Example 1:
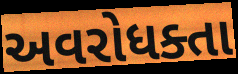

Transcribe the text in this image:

અવરોધક્તા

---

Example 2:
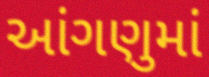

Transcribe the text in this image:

આંગણુમાં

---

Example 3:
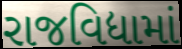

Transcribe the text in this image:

રાજવિદ્યામાં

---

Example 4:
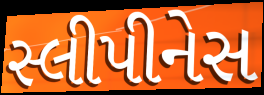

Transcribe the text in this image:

સ્લીપીનેસ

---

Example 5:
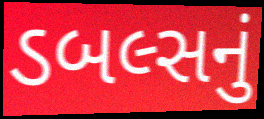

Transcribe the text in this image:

ડબલ્સનું